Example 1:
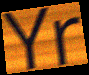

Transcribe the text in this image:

Yr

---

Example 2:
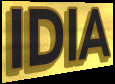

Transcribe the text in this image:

IDIA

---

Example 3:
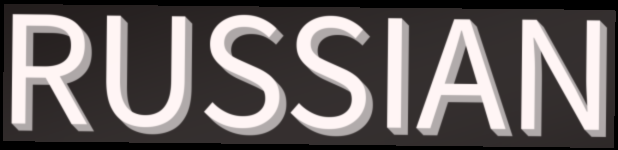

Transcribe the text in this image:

RUSSIAN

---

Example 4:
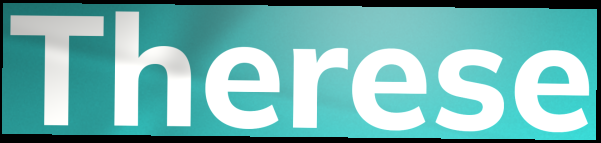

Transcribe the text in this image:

Therese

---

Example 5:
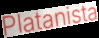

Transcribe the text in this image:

Platanista